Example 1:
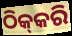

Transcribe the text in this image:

ଠିକ୍‍କରି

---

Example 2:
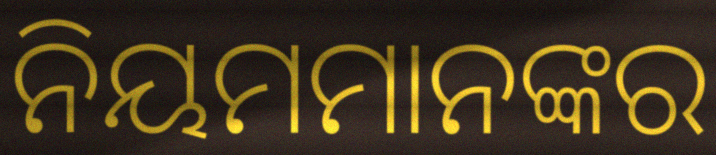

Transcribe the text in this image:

ନିୟମମାନଙ୍କର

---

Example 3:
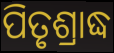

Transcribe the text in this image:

ପିତୃଶ୍ରାଦ୍ଧ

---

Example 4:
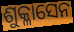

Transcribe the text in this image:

ଶୁକ୍ଳାସେନ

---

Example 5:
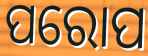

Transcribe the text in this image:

ପରୋପ